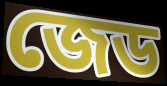
জেড